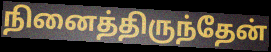
நினைத்திருந்தேன்